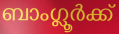
ബാംഗ്ലൂർക്ക്